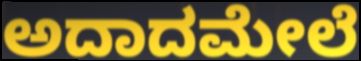
ಅದಾದಮೇಲೆ